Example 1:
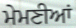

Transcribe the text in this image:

ਮੇਮਣੀਆਂ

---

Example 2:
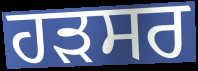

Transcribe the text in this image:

ਹੜਸਰ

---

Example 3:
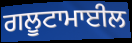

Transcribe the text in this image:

ਗਲੂਟਾਮਾਈਲ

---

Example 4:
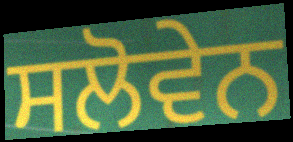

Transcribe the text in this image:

ਸਲੋਵੇਨ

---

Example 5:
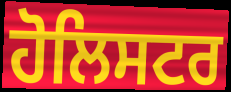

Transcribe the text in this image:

ਹੋਲਿਸਟਰ